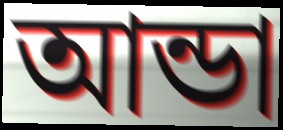
আন্ডা